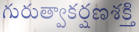
గురుత్వాకర్షణశక్తి